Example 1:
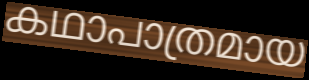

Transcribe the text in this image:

കഥാപാത്രമായ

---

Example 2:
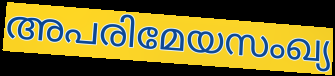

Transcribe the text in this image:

അപരിമേയസംഖ്യ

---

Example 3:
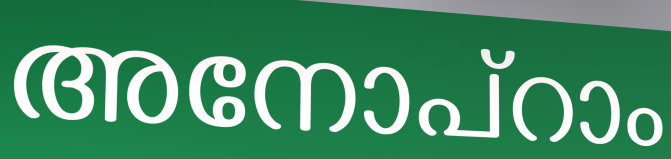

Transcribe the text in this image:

അനോപ്റാം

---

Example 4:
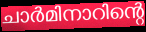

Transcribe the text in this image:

ചാർമിനാറിന്റെ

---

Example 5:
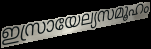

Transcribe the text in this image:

ഇസ്രായേല്യസമൂഹം